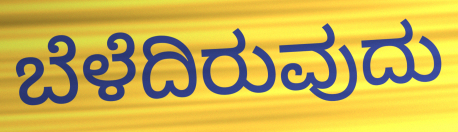
ಬೆಳೆದಿರುವುದು